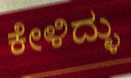
ಕೇಳಿದ್ಳು